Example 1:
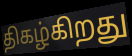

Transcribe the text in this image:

திகழ்கிறது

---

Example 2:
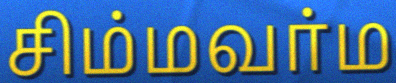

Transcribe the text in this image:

சிம்மவர்ம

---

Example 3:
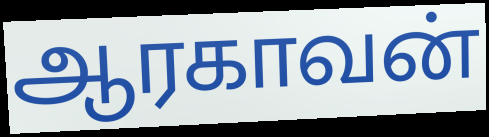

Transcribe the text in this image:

ஆரகாவன்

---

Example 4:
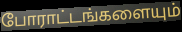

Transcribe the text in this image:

போராட்டங்களையும்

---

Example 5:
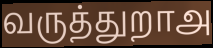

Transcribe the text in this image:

வருத்துறாஅ